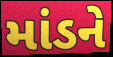
માંડને